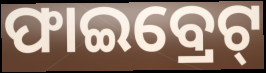
ଫାଇବ୍ରେଟ୍